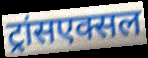
ट्रांसएक्सल